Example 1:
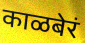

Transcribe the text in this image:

काळबेरं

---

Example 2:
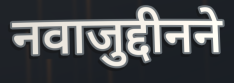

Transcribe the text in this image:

नवाजुद्दीनने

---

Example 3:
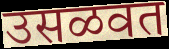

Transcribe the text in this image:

उसळवत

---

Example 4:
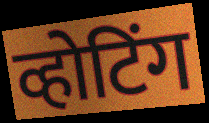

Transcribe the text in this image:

व्होटिंग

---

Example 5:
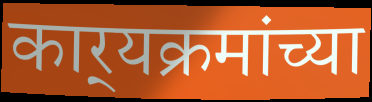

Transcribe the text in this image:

कार्यक्रमांच्या